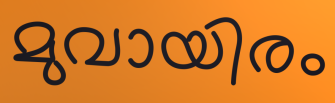
മുവായിരം